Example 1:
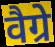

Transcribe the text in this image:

वैग्रे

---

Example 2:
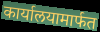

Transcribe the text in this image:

कार्यालयामार्फत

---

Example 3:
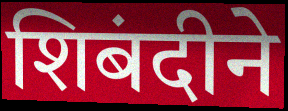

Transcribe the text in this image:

शिबंदीने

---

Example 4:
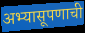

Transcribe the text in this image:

अभ्यासूपणाची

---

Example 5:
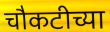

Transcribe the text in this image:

चौकटीच्या